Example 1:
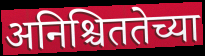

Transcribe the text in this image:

अनिश्चिततेच्या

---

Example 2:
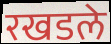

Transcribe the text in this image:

रखडले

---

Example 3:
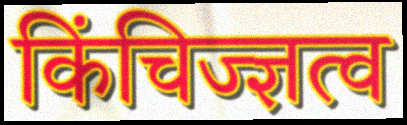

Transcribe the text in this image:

किंचिज्ज्ञत्व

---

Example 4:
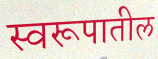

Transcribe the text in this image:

स्वरूपातील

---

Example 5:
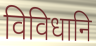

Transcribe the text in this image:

विविधानि